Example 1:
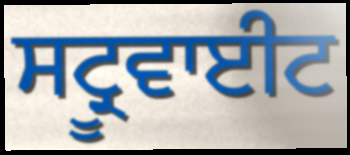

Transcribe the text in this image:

ਸਟ੍ਰੂਵਾਈਟ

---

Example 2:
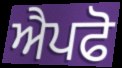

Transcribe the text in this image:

ਐਪਫੋ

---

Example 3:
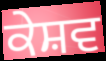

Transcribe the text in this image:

ਕੇਸ਼ਵ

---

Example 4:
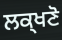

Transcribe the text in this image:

ਲਕ੍ਖਣੋ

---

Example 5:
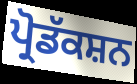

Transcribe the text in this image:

ਪ੍ਰੋਡੱਕਸ਼ਨ